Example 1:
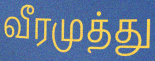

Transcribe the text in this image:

வீரமுத்து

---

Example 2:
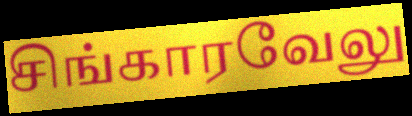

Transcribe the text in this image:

சிங்காரவேலு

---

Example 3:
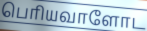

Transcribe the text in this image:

பெரியவாளோட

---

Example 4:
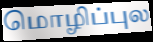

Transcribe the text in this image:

மொழிப்புல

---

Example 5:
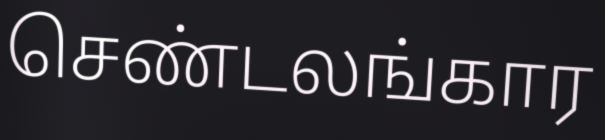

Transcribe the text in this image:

செண்டலங்கார